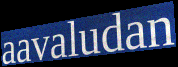
aavaludan